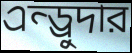
এন্ড্রুদার